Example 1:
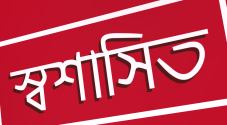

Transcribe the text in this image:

স্বশাসিত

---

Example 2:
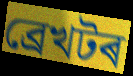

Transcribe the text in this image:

ব্ৰেখটৰ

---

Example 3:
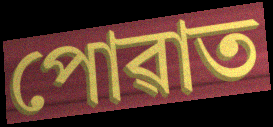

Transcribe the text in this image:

পোৱাত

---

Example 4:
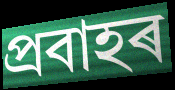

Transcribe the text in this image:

প্ৰবাহৰ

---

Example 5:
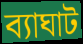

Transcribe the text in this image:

ব্যাঘাট